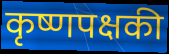
कृष्णपक्षकी